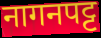
नागनपट्ट